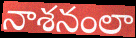
నాశనంలా